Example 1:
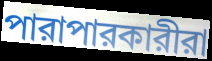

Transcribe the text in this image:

পারাপারকারীরা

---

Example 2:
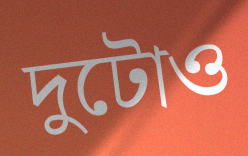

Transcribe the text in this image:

দুটোও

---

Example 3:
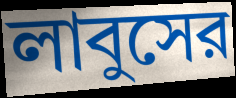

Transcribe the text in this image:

লাবুসের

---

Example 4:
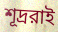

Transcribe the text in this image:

শূদ্ররাই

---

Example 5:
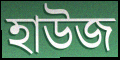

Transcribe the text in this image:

হাউজ